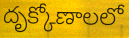
దృక్కోణాలలో